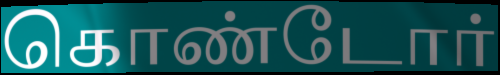
கொண்டோர்